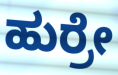
ಹುರ್ರೇ